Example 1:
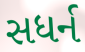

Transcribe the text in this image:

સધર્ન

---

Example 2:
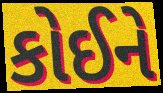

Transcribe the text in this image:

કોઈને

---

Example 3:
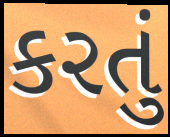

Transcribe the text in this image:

કરતું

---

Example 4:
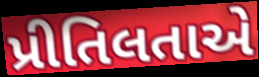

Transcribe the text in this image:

પ્રીતિલતાએ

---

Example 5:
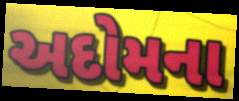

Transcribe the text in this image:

અદોમના